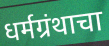
धर्मग्रंथाचा